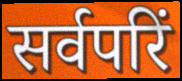
सर्वपरिं